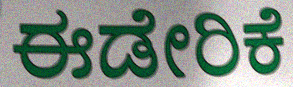
ಈಡೇರಿಕೆ